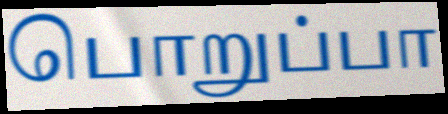
பொறுப்பா